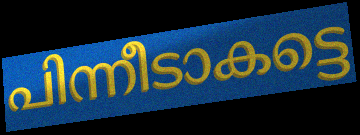
പിന്നീടാകട്ടെ